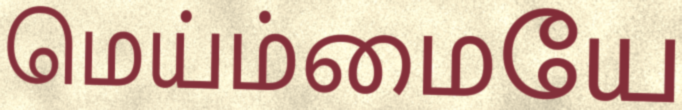
மெய்ம்மையே